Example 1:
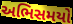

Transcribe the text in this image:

અભિસમયો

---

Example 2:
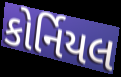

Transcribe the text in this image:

કોર્નિયલ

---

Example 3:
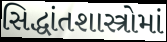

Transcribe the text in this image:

સિદ્ધાંતશાસ્ત્રોમાં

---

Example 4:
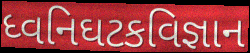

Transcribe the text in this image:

ધ્વનિઘટકવિજ્ઞાન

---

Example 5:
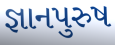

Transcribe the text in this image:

જ્ઞાનપુરુષ